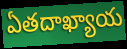
ఏతదాఖ్యాయ